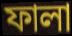
ফালা